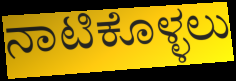
ನಾಟಿಕೊಳ್ಳಲು